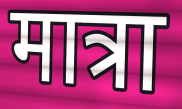
मात्रा